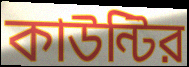
কাউন্টির